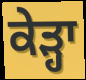
ਕੇੜ੍ਹਾ